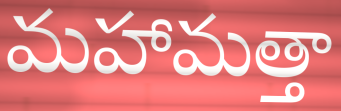
మహామత్తా